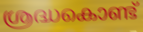
ശ്രദ്ധകൊണ്ട്